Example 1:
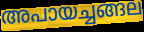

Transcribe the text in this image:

അപായച്ചങ്ങല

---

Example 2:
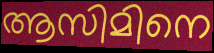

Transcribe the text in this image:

ആസിമിനെ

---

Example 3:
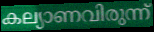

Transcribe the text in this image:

കല്യാണവിരുന്ന്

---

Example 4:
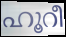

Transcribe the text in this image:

ഹൂറീ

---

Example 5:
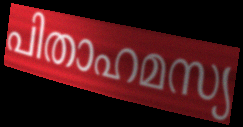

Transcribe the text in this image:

പിതാഹമസ്യ